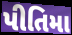
પીતિમા